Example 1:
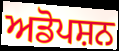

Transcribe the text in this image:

ਅਡੋਪਸ਼ਨ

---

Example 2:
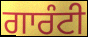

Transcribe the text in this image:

ਗਾਰੰਟੀ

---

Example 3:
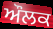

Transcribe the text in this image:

ਔਲਕ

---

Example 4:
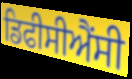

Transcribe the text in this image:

ਡਿਫੀਸੀਐਂਸੀ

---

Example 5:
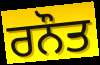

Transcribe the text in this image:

ਰਨੌਤ